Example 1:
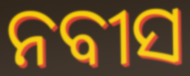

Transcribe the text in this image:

ନବୀସ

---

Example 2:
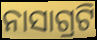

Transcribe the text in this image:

ନାସାଗ୍ରଟି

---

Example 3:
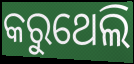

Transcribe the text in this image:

କରୁଥେଲି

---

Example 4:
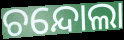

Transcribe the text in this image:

ଚନ୍ଦୋଲା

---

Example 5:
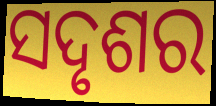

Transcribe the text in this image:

ସଦୃଶର